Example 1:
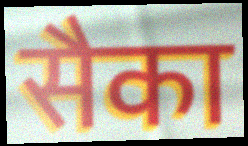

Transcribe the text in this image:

सैका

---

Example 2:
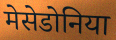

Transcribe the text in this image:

मेसेडोनिया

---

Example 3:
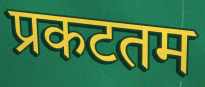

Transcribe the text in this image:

प्रकटतम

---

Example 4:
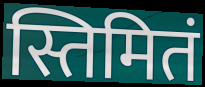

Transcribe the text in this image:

स्तिमितं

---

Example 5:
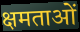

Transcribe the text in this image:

क्षमताओं